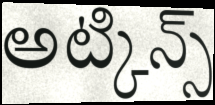
అట్కిన్స్